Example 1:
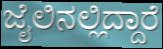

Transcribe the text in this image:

ಜೈಲಿನಲ್ಲಿದ್ದಾರೆ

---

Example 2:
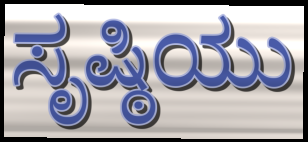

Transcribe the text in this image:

ಸೃಷ್ಠಿಯು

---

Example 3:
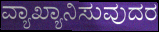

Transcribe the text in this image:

ವ್ಯಾಖ್ಯಾನಿಸುವುದರ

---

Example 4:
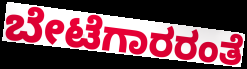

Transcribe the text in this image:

ಬೇಟೆಗಾರರಂತೆ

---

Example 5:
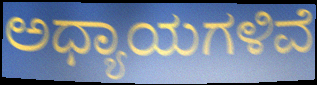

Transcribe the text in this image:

ಅಧ್ಯಾಯಗಳಿವೆ